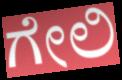
ಗೇಲಿ